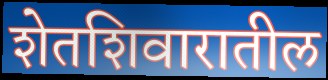
शेतशिवारातील